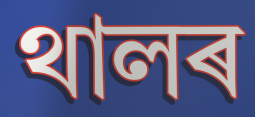
থালৰ